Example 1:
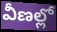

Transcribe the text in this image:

వీణల్లో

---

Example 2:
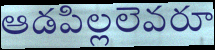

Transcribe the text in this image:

ఆడపిల్లలెవరూ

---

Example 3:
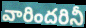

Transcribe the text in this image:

వారిందరినీ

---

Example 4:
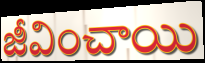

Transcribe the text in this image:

జీవించాయి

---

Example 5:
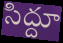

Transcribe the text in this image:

సిద్దూ